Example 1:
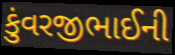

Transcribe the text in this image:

કુંવરજીભાઈની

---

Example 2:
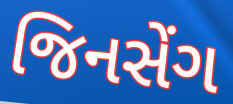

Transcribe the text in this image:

જિનસેંગ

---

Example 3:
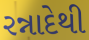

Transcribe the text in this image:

રન્નાદેથી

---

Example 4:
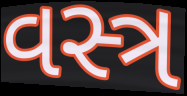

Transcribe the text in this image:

વસ્ત્ર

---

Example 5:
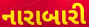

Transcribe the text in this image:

નારાબારી